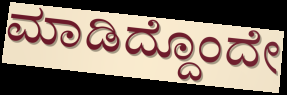
ಮಾಡಿದ್ದೊಂದೇ